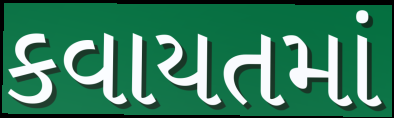
કવાયતમાં